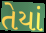
તેયાં